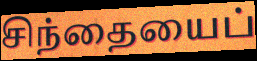
சிந்தையைப்